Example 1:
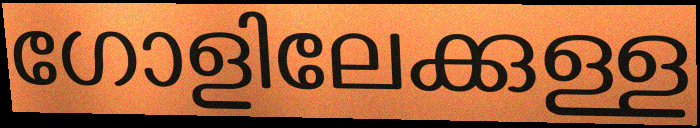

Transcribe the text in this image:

ഗോളിലേക്കുള്ള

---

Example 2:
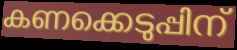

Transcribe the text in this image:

കണക്കെടുപ്പിന്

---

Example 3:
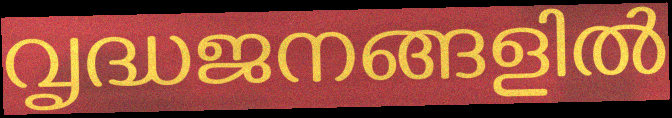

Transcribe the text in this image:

വൃദ്ധജനങ്ങളിൽ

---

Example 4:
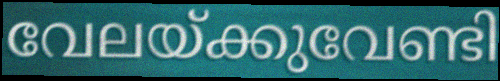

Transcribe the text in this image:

വേലയ്ക്കുവേണ്ടി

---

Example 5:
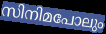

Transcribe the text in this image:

സിനിമപോലും